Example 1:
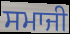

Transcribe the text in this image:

ਸਮਾਜੀ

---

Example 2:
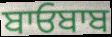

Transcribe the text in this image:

ਬਾਓਬਾਬ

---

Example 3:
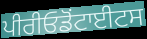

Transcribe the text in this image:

ਪੀਰੀਓਡੋਂਟਾਈਟਸ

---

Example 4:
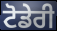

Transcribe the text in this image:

ਟੋਡੇਰੀ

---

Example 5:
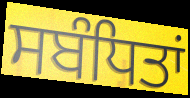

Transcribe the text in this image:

ਸਬੰਧਿਤਾਂ